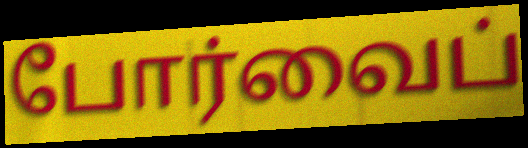
போர்வைப்